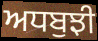
ਅਧਬੁਝੀ